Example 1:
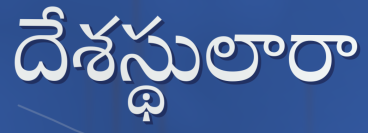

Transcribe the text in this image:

దేశస్థులారా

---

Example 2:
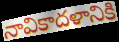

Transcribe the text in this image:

నావికాదళానికి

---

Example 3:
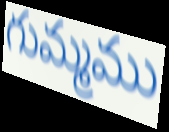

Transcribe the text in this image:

గుమ్మము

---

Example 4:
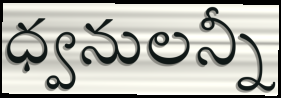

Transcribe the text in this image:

ధ్వనులన్నీ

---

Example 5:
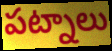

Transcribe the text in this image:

పట్నాలు